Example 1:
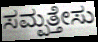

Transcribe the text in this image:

ಸಮ್ಪತ್ತೇಸು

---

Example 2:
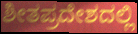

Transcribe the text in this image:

ಶೀತಪ್ರದೇಶದಲ್ಲಿ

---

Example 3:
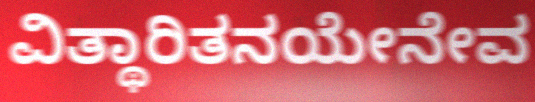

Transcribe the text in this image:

ವಿತ್ಥಾರಿತನಯೇನೇವ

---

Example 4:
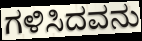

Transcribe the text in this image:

ಗಳಿಸಿದವನು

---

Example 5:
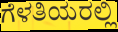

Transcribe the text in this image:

ಗೆಳತಿಯರಲ್ಲಿ